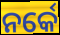
ନର୍କେ